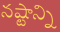
నష్టాన్ని